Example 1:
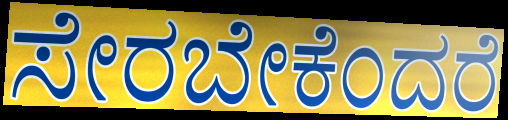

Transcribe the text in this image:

ಸೇರಬೇಕೆಂದರೆ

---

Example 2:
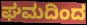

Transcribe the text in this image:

ಘಮದಿಂದ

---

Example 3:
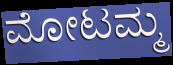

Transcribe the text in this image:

ಮೋಟಮ್ಮ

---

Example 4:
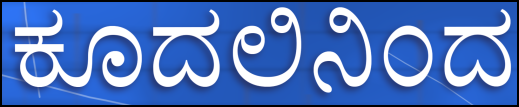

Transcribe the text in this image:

ಕೂದಲಿನಿಂದ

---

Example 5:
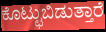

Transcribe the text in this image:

ಕೊಟ್ಟುಬಿಡುತ್ತಾರೆ